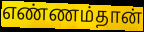
எண்ணம்தான்